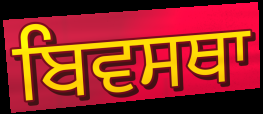
ਬਿਵਸਥਾ